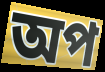
অপ